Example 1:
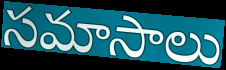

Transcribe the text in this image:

సమాసాలు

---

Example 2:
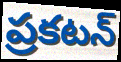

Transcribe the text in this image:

ప్రకటన్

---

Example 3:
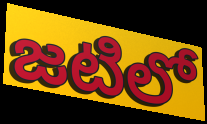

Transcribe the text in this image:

జటిలో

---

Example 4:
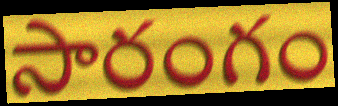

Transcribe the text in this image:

సారంగం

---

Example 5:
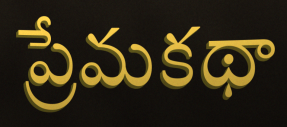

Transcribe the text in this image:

ప్రేమకథా